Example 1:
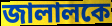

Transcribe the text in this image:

জালালকে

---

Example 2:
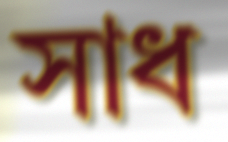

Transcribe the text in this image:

সাধ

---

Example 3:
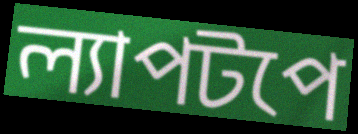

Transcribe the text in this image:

ল্যাপটপে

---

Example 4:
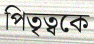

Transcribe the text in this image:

পিতৃত্বকে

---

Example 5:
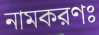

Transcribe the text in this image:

নামকরণঃ